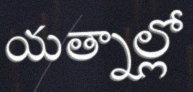
యత్నాల్లో